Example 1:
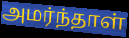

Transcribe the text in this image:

அமர்ந்தாள்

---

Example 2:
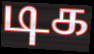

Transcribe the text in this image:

டிக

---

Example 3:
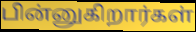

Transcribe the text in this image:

பின்னுகிறார்கள்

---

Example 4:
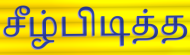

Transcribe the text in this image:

சீழ்பிடித்த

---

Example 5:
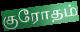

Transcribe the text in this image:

குரோதம்